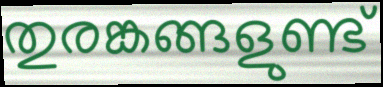
തുരങ്കങ്ങളുണ്ട്